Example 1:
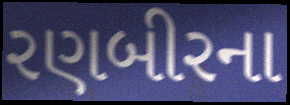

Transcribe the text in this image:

રણબીરના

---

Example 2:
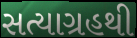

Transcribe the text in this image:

સત્યાગ્રહથી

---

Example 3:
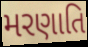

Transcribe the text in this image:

મરણાતિ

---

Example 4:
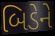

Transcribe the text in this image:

બિડેને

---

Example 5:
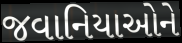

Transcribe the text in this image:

જવાનિયાઓને